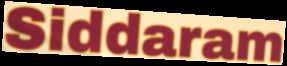
Siddaram